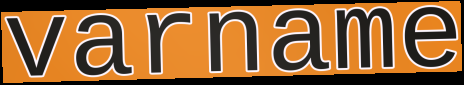
varname